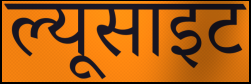
ल्यूसाइट